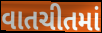
વાતચીતમાં